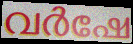
വർഷേ